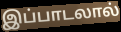
இப்பாடலால்